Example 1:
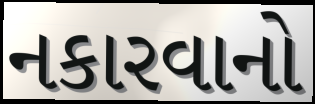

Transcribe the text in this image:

નકારવાનો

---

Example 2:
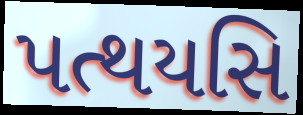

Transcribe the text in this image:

પત્થયસિ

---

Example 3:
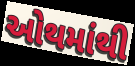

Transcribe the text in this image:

ઓથમાંથી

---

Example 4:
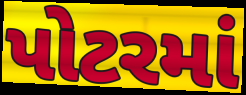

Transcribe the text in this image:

પોટરમાં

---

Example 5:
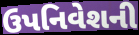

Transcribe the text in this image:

ઉપનિવેશની